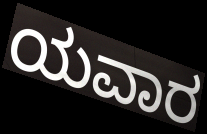
ಯವಾರ